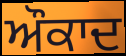
ਔਕਾਦ